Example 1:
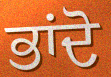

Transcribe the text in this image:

ਭਾਂਦੋ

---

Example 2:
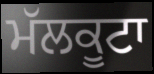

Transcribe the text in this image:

ਮੱਲਕੂਟਾ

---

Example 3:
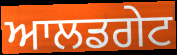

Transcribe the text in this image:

ਆਲਡਗੇਟ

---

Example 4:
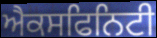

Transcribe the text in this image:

ਐਕਸਫਿਨਿਟੀ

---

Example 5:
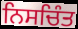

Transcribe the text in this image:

ਨਿਸਚਿੰਤ